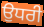
ਉਧਰੀ